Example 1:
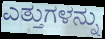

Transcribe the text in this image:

ಎತ್ತುಗಳನ್ನು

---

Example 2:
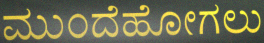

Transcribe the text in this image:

ಮುಂದೆಹೋಗಲು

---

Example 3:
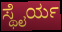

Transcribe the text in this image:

ಸ್ಥೈರ್ಯ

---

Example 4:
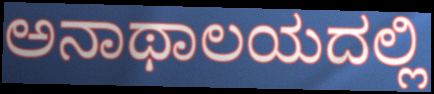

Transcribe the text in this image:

ಅನಾಥಾಲಯದಲ್ಲಿ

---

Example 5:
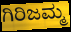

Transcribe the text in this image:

ಗಿರಿಜಮ್ಮ